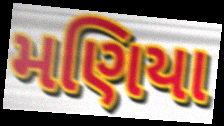
મણિયા